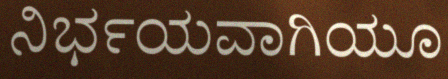
ನಿರ್ಭಯವಾಗಿಯೂ